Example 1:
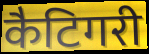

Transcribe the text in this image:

कैटिगरी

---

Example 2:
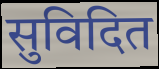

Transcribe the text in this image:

सुविदित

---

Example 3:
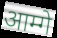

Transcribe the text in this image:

आम्गे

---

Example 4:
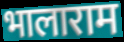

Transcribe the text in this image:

भालाराम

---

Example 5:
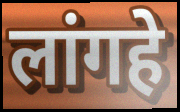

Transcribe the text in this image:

लांगहे